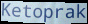
Ketoprak